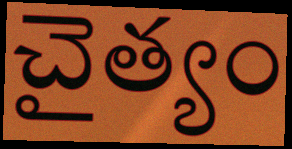
చైత్యం